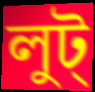
লুট্